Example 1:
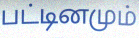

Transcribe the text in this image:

பட்டினமும்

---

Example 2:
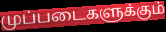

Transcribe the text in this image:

முப்படைகளுக்கும்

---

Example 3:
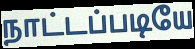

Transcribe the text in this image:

நாட்டப்படியே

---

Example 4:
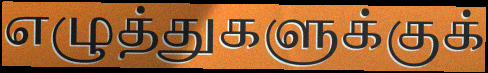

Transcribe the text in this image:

எழுத்துகளுக்குக்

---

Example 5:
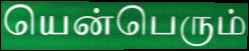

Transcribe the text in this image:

யென்பெரும்